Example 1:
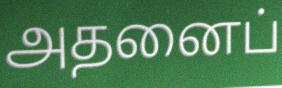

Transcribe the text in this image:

அதனைப்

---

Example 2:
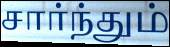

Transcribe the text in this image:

சார்ந்தும்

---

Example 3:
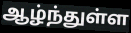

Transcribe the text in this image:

ஆழ்ந்துள்ள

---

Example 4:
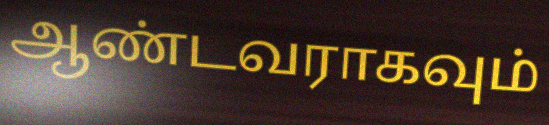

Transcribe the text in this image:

ஆண்டவராகவும்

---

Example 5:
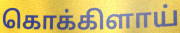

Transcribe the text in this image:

கொக்கிளாய்